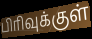
பிரிவுக்குள்